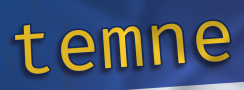
temne